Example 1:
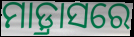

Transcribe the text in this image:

ମାଡ଼୍ରାସରେ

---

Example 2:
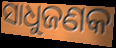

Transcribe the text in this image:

ସାଧୁଜଣକ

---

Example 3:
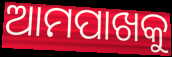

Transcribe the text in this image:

ଆମପାଖକୁ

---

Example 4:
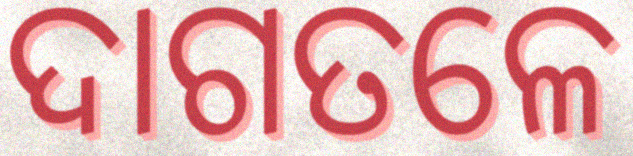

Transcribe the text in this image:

ଦାଗତଳେ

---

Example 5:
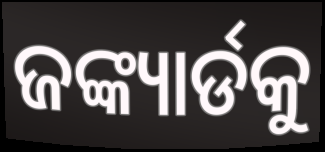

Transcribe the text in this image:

ଜଙ୍କ୍ୟାର୍ଡକୁ